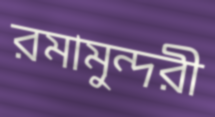
রমামুন্দরী